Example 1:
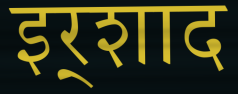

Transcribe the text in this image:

इर्शाद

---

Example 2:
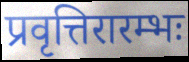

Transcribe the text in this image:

प्रवृत्तिरारम्भः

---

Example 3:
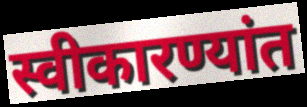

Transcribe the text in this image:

स्वीकारण्यांत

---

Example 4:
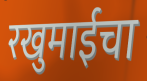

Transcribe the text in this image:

रखुमाईचा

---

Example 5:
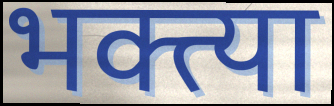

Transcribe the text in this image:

भक्त्या